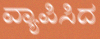
ವ್ಯಾಪಿಸಿದ